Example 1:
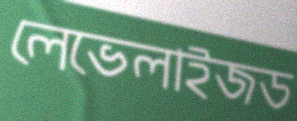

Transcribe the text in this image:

লেভেলাইজড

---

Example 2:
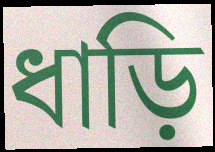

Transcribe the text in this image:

ধাড়ি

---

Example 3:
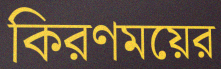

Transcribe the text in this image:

কিরণময়ের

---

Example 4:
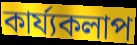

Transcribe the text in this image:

কার্য্যকলাপ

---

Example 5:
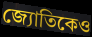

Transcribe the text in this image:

জ্যোতিকেও